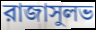
রাজাসুলভ